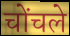
चोंचले